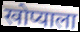
खोप्याला